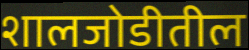
शालजोडीतील